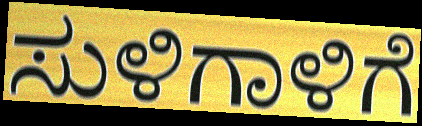
ಸುಳಿಗಾಳಿಗೆ